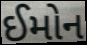
ઈમોન